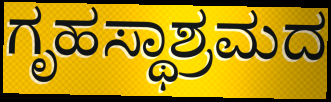
ಗೃಹಸ್ಥಾಶ್ರಮದ